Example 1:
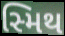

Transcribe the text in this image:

સ્મિથ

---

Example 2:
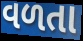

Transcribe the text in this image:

વળતા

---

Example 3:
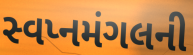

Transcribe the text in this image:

સ્વપ્નમંગલની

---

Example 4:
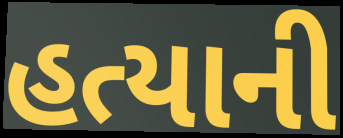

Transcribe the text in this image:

હત્યાની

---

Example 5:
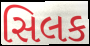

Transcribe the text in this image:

સિલક